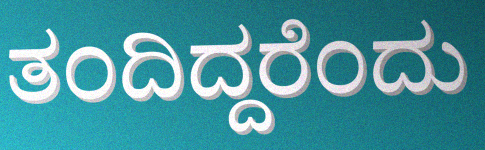
ತಂದಿದ್ದರೆಂದು